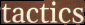
tactics